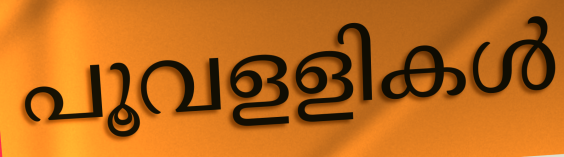
പൂവളളികൾ